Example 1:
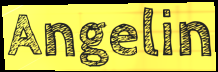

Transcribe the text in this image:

Angelin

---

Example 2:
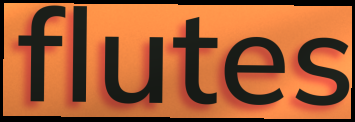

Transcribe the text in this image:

flutes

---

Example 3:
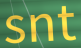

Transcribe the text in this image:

snt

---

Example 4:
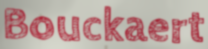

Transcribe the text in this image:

Bouckaert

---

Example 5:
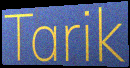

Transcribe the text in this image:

Tarik